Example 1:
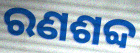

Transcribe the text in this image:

ରଣଶବ୍ଦ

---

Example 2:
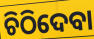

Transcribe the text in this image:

ଚିଠିଦେବା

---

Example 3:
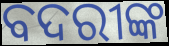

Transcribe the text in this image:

ବଦରୀଙ୍କ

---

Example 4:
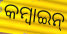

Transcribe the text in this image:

କମ୍ବାଇନ୍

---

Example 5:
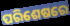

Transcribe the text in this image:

ପରିଶେଷରେ